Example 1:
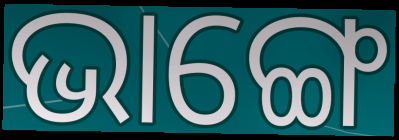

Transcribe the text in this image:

ଭାଙ୍ଗେ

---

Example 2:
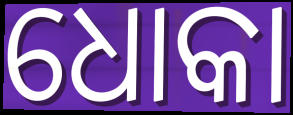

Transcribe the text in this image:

ଧୋକା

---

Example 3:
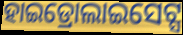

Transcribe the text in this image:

ହାଇଡ୍ରୋଲାଇସେଟ୍ସ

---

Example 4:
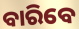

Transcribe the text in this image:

ବାରିବେ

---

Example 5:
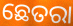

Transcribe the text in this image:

ଛେତରା